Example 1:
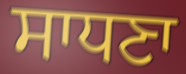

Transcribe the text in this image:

ਸਾਧਣਾ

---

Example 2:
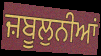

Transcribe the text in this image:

ਜ਼ਬੂਲੁਨੀਆਂ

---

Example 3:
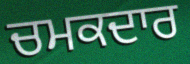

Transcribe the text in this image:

ਚਮਕਦਾਰ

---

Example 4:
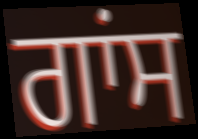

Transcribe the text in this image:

ਗਾਂਸ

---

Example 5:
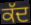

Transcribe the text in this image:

ਕੱਦ